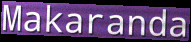
Makaranda